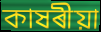
কাষৰীয়া